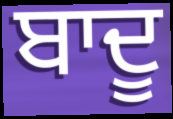
ਬਾਦੂ